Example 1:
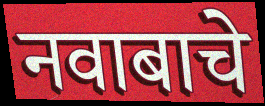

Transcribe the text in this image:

नवाबाचे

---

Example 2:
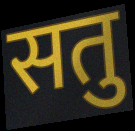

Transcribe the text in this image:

सतु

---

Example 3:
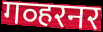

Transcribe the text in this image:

गव्हरनर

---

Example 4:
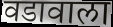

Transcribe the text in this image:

वडावाला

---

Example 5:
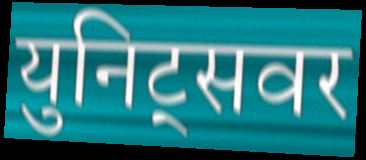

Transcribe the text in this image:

युनिट्सवर